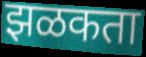
झळकता